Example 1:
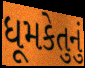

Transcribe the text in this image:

ધૂમકેતુનું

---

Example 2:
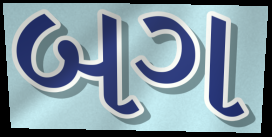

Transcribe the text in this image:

બગ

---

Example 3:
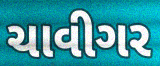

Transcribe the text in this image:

ચાવીગર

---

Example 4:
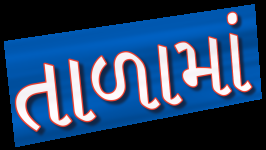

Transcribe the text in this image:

તાળામાં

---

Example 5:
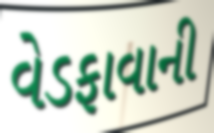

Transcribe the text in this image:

વેડફાવાની